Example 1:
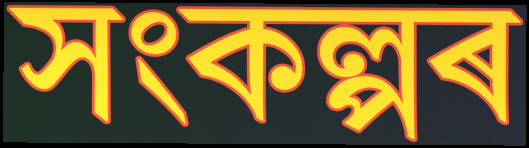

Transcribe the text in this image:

সংকল্পৰ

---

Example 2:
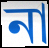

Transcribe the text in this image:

না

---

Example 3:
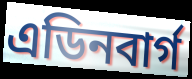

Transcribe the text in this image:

এডিনবাৰ্গ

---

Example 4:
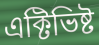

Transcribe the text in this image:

এক্টিভিষ্ট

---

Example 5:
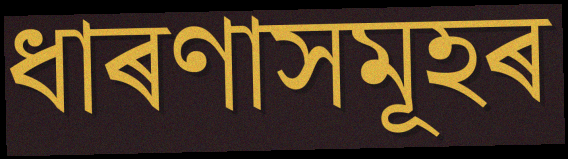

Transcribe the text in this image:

ধাৰণাসমূহৰ